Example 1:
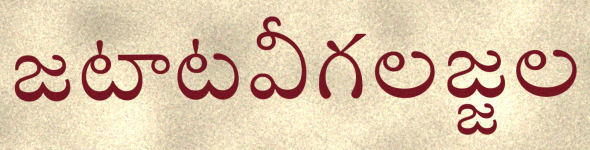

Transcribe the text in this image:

జటాటవీగలజ్జల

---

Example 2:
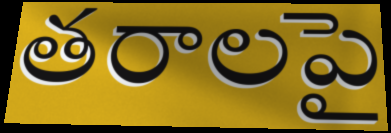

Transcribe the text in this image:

తరాలపై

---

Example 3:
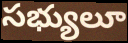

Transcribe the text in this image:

సభ్యులూ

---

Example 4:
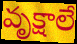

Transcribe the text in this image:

వృక్షాలే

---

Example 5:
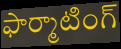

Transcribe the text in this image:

ఫార్మాటింగ్